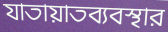
যাতায়াতব্যবস্থার